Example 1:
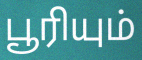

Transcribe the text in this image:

பூரியும்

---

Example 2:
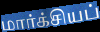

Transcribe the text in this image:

மார்க்சியப்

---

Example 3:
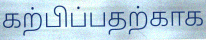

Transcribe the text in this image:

கற்பிப்பதற்காக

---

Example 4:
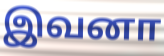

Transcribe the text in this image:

இவனா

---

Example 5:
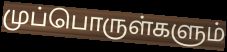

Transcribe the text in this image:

முப்பொருள்களும்